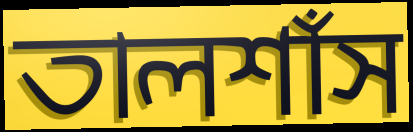
তালশাঁস